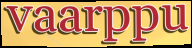
vaarppu